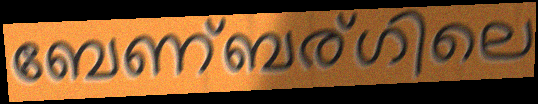
ബേണ്ബര്ഗിലെ